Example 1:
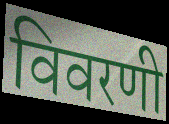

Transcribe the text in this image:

विवरणी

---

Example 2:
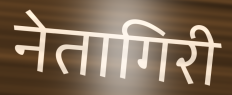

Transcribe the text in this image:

नेतागिरी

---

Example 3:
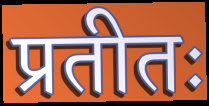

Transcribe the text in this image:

प्रतीतः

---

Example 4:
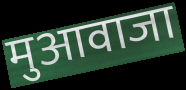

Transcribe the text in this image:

मुआवाजा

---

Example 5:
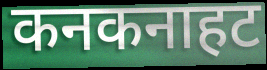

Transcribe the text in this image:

कनकनाहट